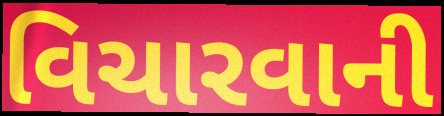
વિચારવાની